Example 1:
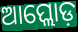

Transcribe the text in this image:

ଆପ୍ଲୋଡ଼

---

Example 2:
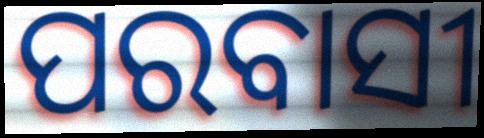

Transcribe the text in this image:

ପରବାସୀ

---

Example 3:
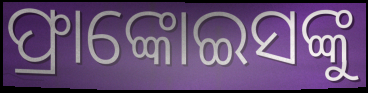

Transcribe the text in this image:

ଫ୍ରାଙ୍କୋଇସଙ୍କୁ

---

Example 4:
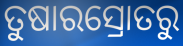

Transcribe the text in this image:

ତୁଷାରସ୍ରୋତରୁ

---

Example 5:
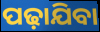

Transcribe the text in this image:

ପଢ଼ାଯିବା